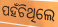
ପହଁଚିଥିଲେ